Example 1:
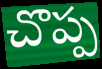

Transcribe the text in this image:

చొప్ప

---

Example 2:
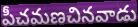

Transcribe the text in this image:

పీచమణచినవాడు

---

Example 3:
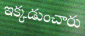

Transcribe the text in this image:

ఇక్కడుంచారు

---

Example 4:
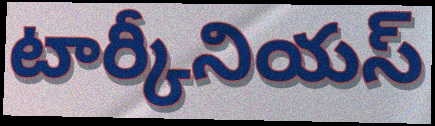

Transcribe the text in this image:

టార్కీనియస్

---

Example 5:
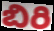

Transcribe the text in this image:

బిరి